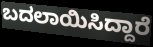
ಬದಲಾಯಿಸಿದ್ದಾರೆ